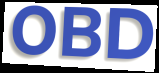
OBD